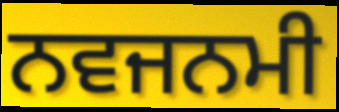
ਨਵਜਨਮੀ